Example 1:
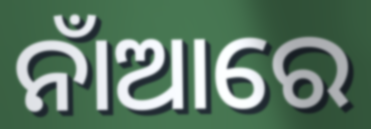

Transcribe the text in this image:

ନାଁଆରେ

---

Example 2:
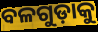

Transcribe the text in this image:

ବଳଗୁଡ଼ାକୁ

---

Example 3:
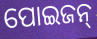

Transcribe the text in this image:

ପୋଇଜନ୍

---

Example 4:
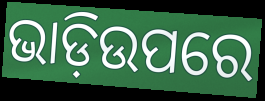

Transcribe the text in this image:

ଭାଡ଼ିଉପରେ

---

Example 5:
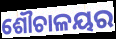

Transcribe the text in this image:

ଶୌଚାଳୟର